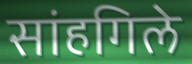
सांहगिले